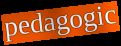
pedagogic